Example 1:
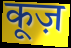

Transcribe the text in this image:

कूज़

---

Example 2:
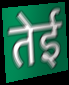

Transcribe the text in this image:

तेई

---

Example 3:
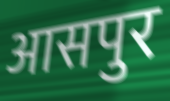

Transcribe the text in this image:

आसपुर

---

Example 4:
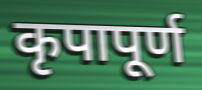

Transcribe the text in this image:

कृपापूर्ण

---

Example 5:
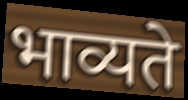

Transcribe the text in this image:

भाव्यते